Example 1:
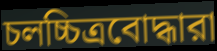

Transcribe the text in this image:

চলচ্চিত্রবোদ্ধারা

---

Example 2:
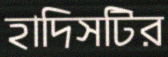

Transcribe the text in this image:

হাদিসটির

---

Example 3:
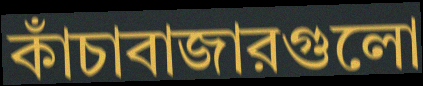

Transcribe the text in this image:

কাঁচাবাজারগুলো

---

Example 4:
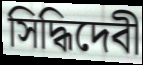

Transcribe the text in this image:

সিদ্ধিদেবী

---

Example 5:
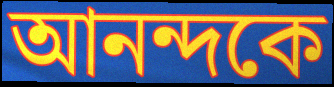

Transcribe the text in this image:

আনন্দকে